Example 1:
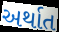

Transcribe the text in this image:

અર્થાત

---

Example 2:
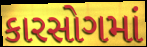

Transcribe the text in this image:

કારસોગમાં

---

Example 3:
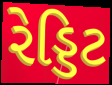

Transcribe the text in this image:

રેડ્ડિટ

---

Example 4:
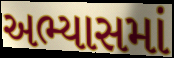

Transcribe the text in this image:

અભ્યાસમાં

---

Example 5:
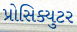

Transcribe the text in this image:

પ્રોસિક્યુટર